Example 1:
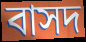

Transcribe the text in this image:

বাসদ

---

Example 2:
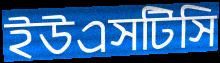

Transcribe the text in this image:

ইউএসটিসি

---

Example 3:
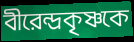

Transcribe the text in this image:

বীরেন্দ্রকৃষ্ণকে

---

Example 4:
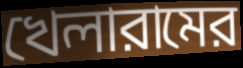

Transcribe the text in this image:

খেলারামের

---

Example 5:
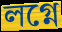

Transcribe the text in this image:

লগ্নে